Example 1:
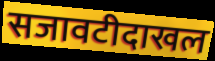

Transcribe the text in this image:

सजावटीदाखल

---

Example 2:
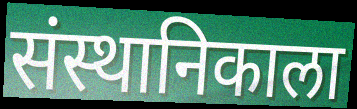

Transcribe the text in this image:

संस्थानिकाला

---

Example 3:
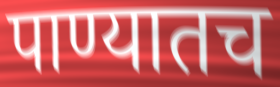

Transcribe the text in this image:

पाण्यातच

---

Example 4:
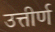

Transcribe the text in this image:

उत्तीर्ण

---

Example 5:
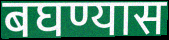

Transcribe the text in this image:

बघण्यास